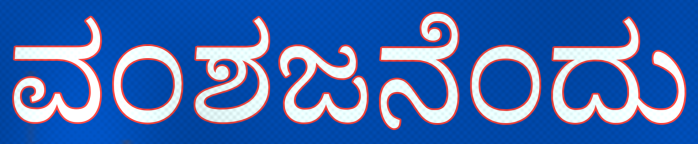
ವಂಶಜನೆಂದು